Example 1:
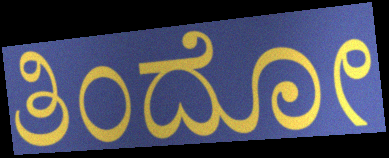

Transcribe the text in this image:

ತಿಂದೋ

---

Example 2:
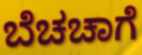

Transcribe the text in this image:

ಬೆಚಚಾಗೆ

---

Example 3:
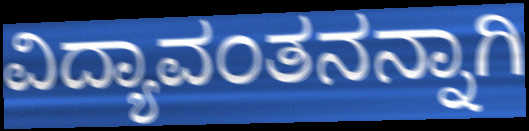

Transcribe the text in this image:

ವಿದ್ಯಾವಂತನನ್ನಾಗಿ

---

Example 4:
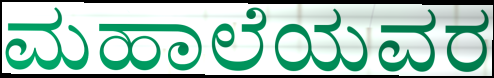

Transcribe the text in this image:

ಮಹಾಲೆಯವರ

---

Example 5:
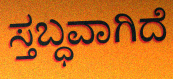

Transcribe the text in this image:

ಸ್ತಬ್ಧವಾಗಿದೆ